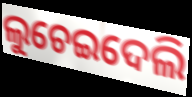
ଲୁଚେଇଦେଲି